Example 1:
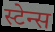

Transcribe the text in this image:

स्टेन्स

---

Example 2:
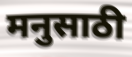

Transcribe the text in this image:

मनुसाठी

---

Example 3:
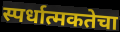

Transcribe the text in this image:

स्पर्धात्मकतेचा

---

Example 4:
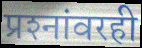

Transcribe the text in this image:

प्रश्नांवरही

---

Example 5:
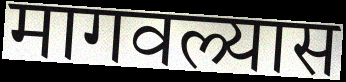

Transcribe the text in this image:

मागवल्यास